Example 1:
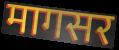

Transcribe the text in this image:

मागसर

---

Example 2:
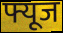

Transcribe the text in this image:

फ्यूज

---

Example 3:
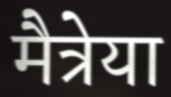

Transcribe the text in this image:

मैत्रेया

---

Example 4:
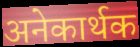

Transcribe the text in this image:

अनेकार्थक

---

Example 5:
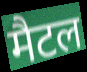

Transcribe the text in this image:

मैटल